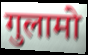
गुलामो